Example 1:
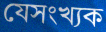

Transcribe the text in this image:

যেসংখ্যক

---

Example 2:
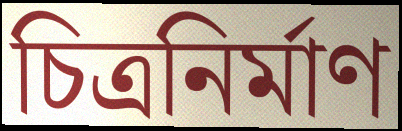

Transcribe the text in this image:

চিত্রনির্মাণ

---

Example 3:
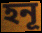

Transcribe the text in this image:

হনূ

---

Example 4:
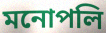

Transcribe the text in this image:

মনোপলি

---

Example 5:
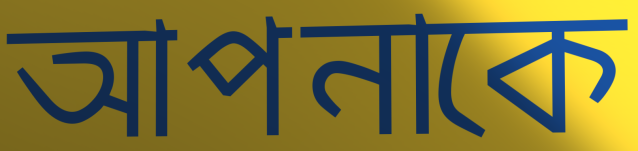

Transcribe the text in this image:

আপনাকে